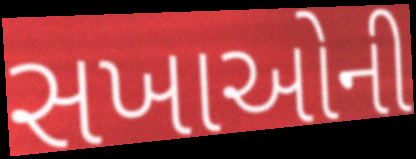
સખાઓની